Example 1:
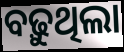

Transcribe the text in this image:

ବଢ଼ୁଥିଲା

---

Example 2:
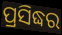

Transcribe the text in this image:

ପ୍ରସିଦ୍ଧର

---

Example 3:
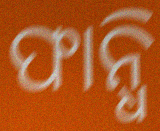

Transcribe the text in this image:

ଫାନ୍ଧି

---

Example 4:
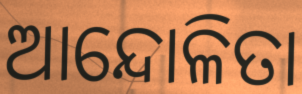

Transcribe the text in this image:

ଆନ୍ଦୋଳିତା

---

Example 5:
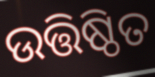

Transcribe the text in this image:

ଉତ୍ତିଷ୍ଠିତ